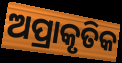
ଅପ୍ରାକୃତିକ